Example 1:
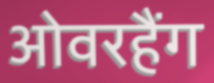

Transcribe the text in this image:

ओवरहैंग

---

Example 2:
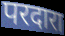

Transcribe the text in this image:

परदारा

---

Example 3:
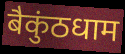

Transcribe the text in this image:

बैकुंठधाम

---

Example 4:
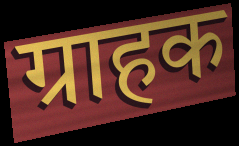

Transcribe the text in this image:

ग्राहक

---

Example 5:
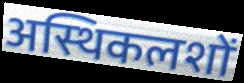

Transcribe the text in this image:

अस्थिकलशों